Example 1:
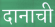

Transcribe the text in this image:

दानाची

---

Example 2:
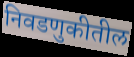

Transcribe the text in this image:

निवडणुकीतील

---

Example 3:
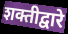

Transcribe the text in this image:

शक्तीद्वारे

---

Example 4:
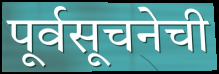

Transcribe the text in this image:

पूर्वसूचनेची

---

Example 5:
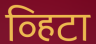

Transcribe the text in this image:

व्हिटा